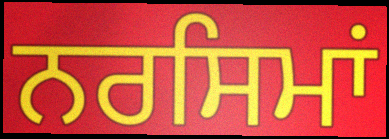
ਨਰਸਿਮਾਂ